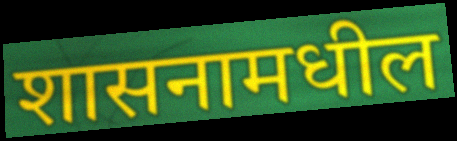
शासनामधील